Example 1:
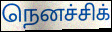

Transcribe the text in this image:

நெனச்சிக்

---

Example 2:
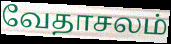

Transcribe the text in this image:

வேதாசலம்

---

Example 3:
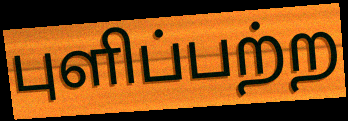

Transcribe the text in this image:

புளிப்பற்ற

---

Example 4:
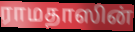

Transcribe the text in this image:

ராமதாஸின்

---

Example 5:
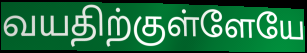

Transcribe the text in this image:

வயதிற்குள்ளேயே